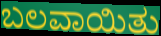
ಬಲವಾಯಿತು